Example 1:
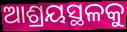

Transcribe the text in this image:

ଆଶ୍ରୟସ୍ଥଳକୁ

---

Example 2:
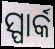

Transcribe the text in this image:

ସ୍ପାର୍କ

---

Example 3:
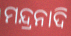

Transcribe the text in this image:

ମନ୍ଦ୍ରନାଦି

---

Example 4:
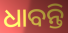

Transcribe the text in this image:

ଧାବନ୍ତି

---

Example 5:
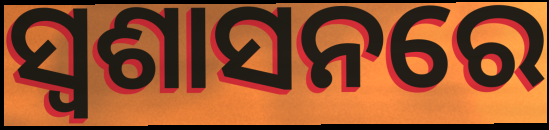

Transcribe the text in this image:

ସ୍ଵଶାସନରେ